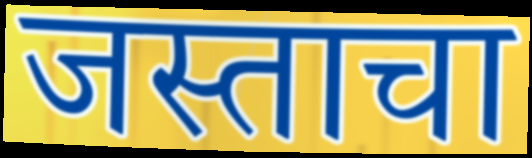
जस्ताचा